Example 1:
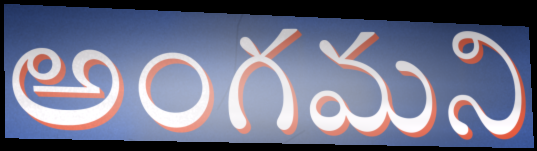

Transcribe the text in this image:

అంగమని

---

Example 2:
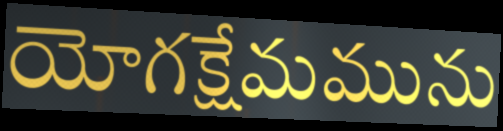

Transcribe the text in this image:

యోగక్షేమమును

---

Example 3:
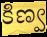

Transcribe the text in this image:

కిణ్వ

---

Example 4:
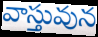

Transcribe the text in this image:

వాస్తువున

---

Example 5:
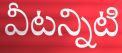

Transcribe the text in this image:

వీటన్నిటి